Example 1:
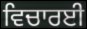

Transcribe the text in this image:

ਵਿਚਾਰਈ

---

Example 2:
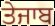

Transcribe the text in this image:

ਤੇਜਾਬ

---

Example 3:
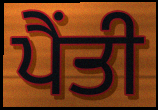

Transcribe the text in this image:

ਪੈਂਤੀ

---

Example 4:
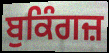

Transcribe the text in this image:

ਬੁਕਿੰਗਜ਼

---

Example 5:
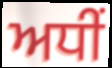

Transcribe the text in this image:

ਅਧੀਂ